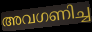
അവഗണിച്ച